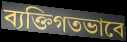
ব্যক্তিগতভাবে